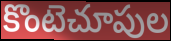
కొంటెచూపుల